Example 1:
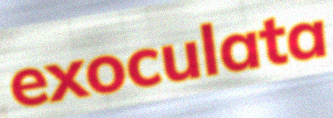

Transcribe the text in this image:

exoculata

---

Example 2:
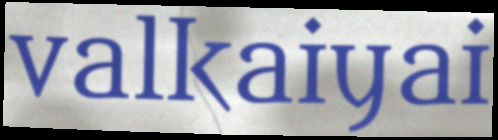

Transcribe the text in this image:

valkaiyai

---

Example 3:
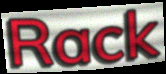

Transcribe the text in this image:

Rack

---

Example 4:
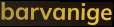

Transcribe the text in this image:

barvanige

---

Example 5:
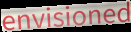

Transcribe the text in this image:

envisioned